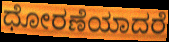
ಧೋರಣೆಯಾದರೆ